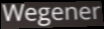
Wegener